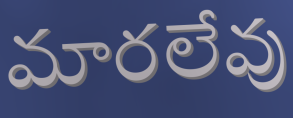
మారలేవు